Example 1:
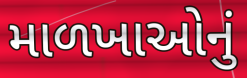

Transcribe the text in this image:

માળખાઓનું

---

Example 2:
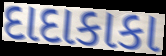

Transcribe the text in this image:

દાદાકાકા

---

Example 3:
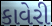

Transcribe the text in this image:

કાવેરી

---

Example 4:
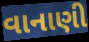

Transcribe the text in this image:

વાનાણી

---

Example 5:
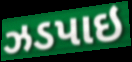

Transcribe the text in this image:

ઝડપાઇ